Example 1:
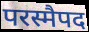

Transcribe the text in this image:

परस्मैपद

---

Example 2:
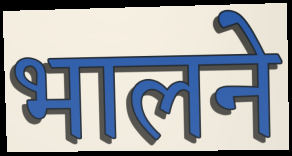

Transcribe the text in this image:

भालने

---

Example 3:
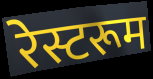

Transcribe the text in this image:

रेस्टरूम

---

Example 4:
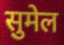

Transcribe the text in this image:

सुमेल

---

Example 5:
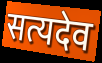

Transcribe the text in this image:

सत्यदेव